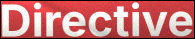
Directive